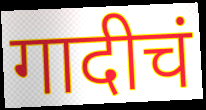
गादीचं